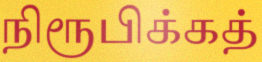
நிரூபிக்கத்